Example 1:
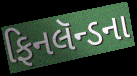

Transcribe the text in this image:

ફિનલૅન્ડના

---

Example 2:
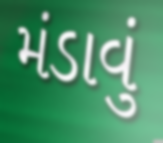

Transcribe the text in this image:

મંડાવું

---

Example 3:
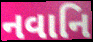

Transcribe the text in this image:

નવાનિ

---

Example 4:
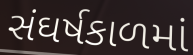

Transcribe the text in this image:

સંઘર્ષકાળમાં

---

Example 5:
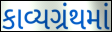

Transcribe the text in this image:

કાવ્યગ્રંથમાં